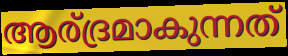
ആര്ദ്രമാകുന്നത്